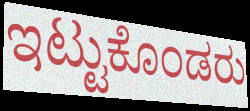
ಇಟ್ಟುಕೊಂಡರು